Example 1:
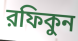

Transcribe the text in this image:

রফিকুন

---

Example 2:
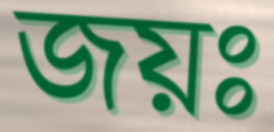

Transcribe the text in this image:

জয়ঃ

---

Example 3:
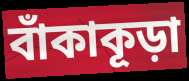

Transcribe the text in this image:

বাঁকাকূড়া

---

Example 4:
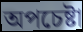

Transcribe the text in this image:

অপচেষ্টা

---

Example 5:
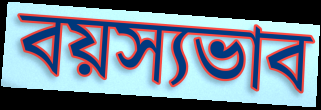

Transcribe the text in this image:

বয়স্যভাব